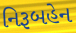
નિરૂબહેન